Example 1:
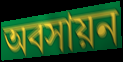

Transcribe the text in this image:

অবসায়ন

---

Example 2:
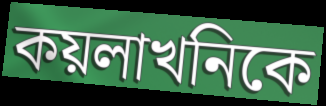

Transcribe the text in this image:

কয়লাখনিকে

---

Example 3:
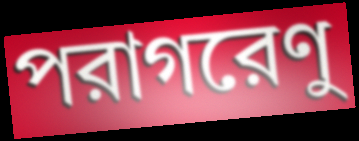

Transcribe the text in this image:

পরাগরেণু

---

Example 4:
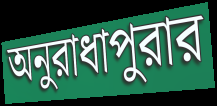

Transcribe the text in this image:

অনুরাধাপুরার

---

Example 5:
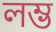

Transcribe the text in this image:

লম্ভ